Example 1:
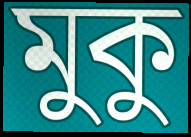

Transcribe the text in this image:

মুকু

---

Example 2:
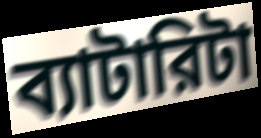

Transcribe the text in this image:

ব্যাটারিটা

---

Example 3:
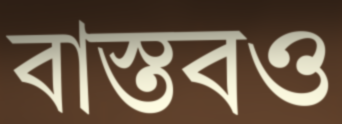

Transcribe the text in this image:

বাস্তবও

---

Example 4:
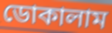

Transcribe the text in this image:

ডোকালাম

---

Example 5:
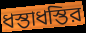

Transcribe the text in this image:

ধস্তাধস্তির